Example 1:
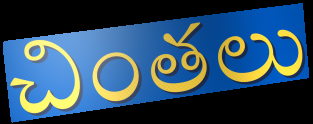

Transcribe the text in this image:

చింతలు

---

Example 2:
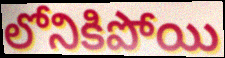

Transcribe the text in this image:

లోనికిపోయి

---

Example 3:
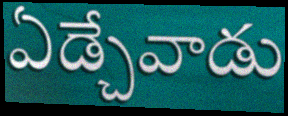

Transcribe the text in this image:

ఏడ్చేవాడు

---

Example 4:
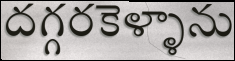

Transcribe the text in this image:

దగ్గరకెళ్ళాను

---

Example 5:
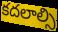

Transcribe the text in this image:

కదలాల్సి